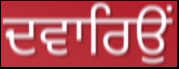
ਦਵਾਰਿਉਂ